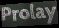
Prolay